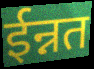
ईन्नत